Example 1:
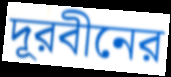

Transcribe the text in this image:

দূরবীনের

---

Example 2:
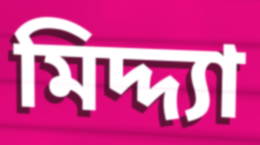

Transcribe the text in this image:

মিদ্দ্যা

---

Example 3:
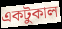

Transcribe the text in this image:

একটুকাল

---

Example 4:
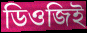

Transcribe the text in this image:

ডিওজিই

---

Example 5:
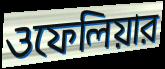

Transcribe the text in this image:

ওফেলিয়ার